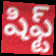
షిఫ్ట్